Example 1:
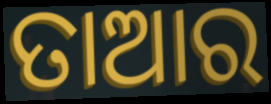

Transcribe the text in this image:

ତାଆର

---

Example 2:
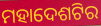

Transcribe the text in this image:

ମହାଦେଶଟିର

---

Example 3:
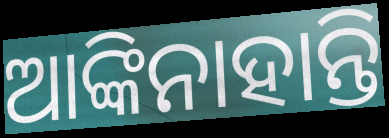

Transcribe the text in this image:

ଆଙ୍କିନାହାନ୍ତି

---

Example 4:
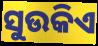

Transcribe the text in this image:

ସୁଉକିଏ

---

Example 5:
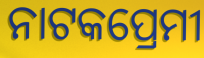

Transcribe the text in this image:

ନାଟକପ୍ରେମୀ